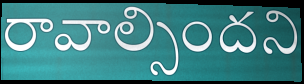
రావాల్సిందని